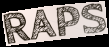
RAPS